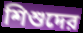
শিশুদের